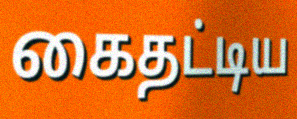
கைதட்டிய